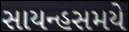
સાયન્હસમયે